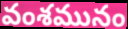
వంశమునం